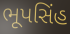
ભૂપસિંહ